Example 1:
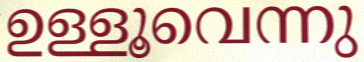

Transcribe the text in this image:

ഉള്ളൂവെന്നു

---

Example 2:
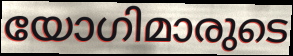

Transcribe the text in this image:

യോഗിമാരുടെ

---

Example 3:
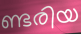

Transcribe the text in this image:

ണ്ടരിയ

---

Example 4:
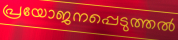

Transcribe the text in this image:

പ്രയോജനപ്പെടുത്തൽ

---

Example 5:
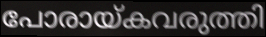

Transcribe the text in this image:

പോരായ്കവരുത്തി